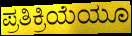
ಪ್ರತಿಕ್ರಿಯೆಯೂ